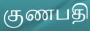
குணபதி